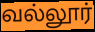
வல்லூர்